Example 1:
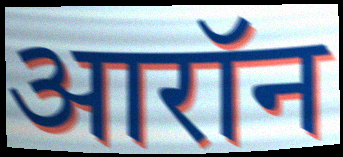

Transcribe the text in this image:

आरॉन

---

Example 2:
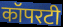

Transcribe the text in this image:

कॉपरटी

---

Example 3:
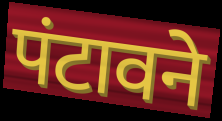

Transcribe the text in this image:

पंटावने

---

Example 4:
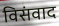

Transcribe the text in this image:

विसंवाद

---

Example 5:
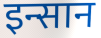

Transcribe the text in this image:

इन्सान